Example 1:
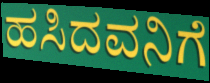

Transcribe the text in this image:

ಹಸಿದವನಿಗೆ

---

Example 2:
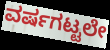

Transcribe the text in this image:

ವರ್ಷಗಟ್ಟಲೇ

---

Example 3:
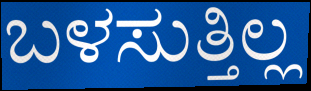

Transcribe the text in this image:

ಬಳಸುತ್ತಿಲ್ಲ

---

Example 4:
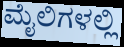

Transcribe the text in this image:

ಮೈಲಿಗಳಲ್ಲಿ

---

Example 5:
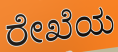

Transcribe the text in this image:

ರೇಖೆಯ